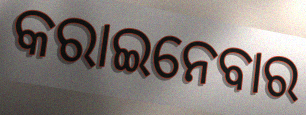
କରାଇନେବାର